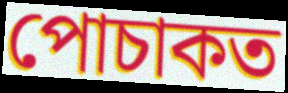
পোচাকত